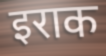
इराक